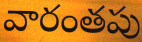
వారంతపు